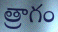
త్రాగం